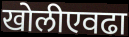
खोलीएवढा